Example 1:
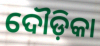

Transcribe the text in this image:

ଦୌଡ଼ିକା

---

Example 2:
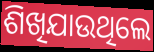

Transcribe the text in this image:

ଶିଖିଯାଉଥିଲେ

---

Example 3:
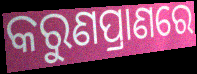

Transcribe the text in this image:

କରୁଣପ୍ରାଣରେ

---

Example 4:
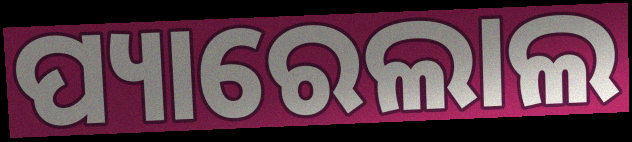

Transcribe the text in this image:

ପ୍ୟାରେଲାଲ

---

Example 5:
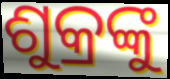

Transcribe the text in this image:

ଶୁକ୍ରଙ୍କୁ